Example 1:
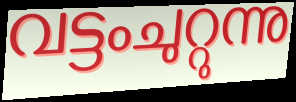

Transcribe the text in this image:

വട്ടംചുറ്റുന്നു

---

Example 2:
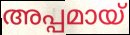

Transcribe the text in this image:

അപ്പമായ്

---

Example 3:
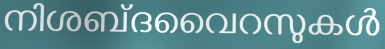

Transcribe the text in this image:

നിശബ്‌ദവൈറസുകൾ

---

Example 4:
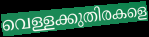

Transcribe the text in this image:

വെള്ളക്കുതിരകളെ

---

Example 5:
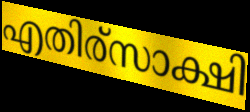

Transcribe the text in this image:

എതിര്സാക്ഷി